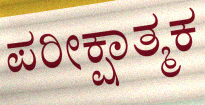
ಪರೀಕ್ಷಾತ್ಮಕ